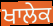
ਖਾਲੇਕ